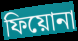
ফিয়োনা